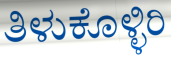
ತಿಳುಕೊಳ್ಳಿರಿ